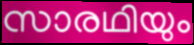
സാരഥിയും